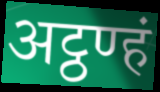
अट्ठण्हं